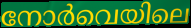
നോർവെയിലെ